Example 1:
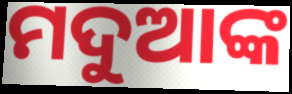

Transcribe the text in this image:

ମଦୁଆଙ୍କ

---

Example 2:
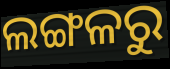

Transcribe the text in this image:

ଲଙ୍ଗଳରୁ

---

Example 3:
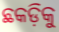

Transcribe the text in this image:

ଛକଡ଼ିକୁ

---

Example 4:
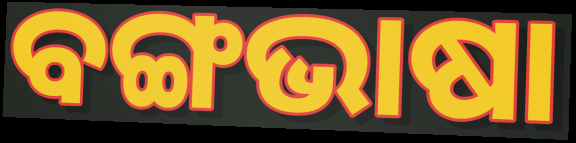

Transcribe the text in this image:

ବଙ୍ଗଭାଷା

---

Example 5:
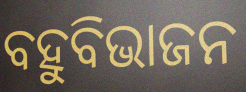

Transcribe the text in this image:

ବହୁବିଭାଜନ